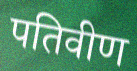
पतिवीण